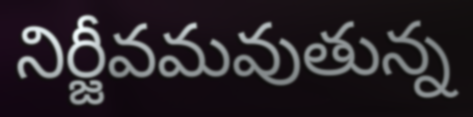
నిర్జీవమవుతున్న